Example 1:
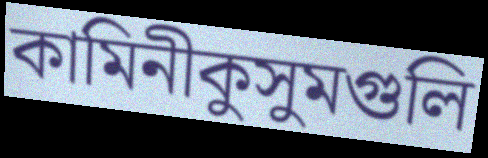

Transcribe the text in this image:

কামিনীকুসুমগুলি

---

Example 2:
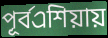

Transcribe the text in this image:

পূর্বএশিয়ায়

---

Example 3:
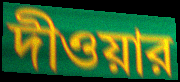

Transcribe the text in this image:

দীওয়ার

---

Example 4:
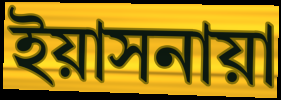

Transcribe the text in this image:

ইয়াসনায়া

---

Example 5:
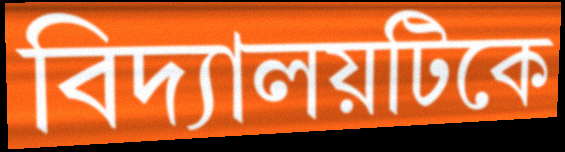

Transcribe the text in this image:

বিদ্যালয়টিকে